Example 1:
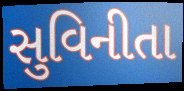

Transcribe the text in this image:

સુવિનીતા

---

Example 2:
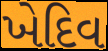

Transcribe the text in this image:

ખેદિવ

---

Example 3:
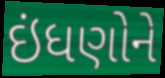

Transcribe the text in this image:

ઇંધણોને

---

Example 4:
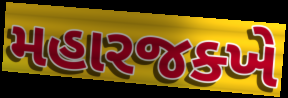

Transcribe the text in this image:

મહારજક્ખે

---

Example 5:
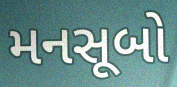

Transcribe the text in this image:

મનસૂબો